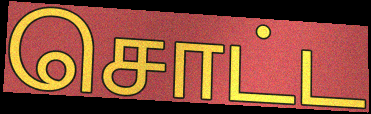
சொட்ட